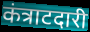
कंत्राटदारी